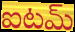
ఐటమ్